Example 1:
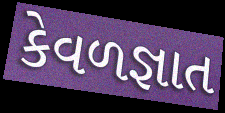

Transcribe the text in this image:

કેવળજ્ઞાત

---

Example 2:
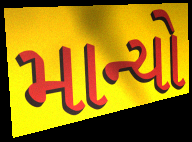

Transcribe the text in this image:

માન્યો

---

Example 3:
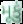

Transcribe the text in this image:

મૂકું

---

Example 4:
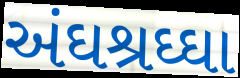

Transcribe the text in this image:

અંઘશ્રઘ્ઘા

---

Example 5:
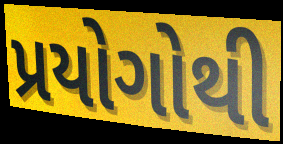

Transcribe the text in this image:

પ્રયોગોથી